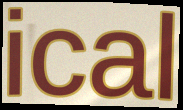
ical